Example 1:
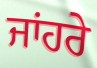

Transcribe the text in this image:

ਜਾਂਹਰੇ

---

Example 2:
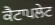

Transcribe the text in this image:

ਕੈਟਾਪਲੇਟ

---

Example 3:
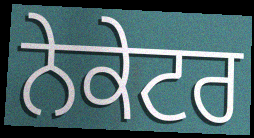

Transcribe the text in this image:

ਨੇਕੇਟਰ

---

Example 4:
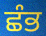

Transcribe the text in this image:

ਛੰਭ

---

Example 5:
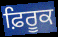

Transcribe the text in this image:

ਫ਼ਿਰੂਕ